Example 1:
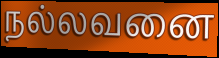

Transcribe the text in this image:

நல்லவனை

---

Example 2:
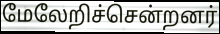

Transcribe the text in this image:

மேலேறிச்சென்றனர்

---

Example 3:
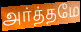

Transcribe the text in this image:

அர்த்தமே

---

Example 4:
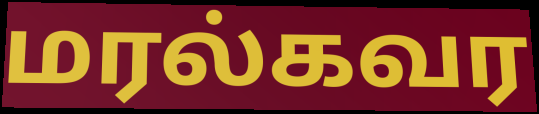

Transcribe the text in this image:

மரல்கவர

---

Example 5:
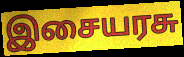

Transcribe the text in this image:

இசையரசு